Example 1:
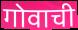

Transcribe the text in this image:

गोवाची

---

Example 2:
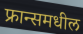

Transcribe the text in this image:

फ्रान्समधील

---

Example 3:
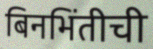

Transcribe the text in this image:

बिनभिंतीची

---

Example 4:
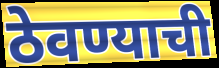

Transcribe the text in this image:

ठेवण्याची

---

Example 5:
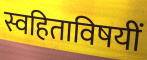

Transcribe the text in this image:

स्वहिताविषयीं